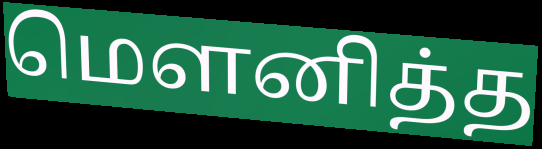
மௌனித்த